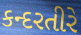
કન્દરતીરે